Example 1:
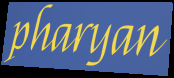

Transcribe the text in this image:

pharyan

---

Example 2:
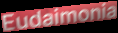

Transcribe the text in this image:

Eudaimonia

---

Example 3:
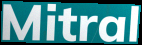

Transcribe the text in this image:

Mitral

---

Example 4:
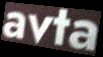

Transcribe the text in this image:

avta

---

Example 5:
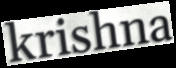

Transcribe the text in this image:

krishna